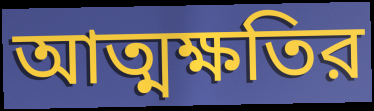
আত্মক্ষতির